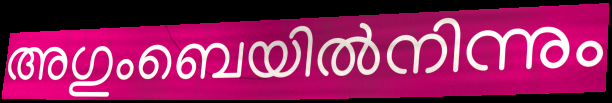
അഗുംബെയിൽനിന്നും